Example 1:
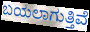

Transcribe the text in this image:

ಬಯಲಾಗುತ್ತಿವೆ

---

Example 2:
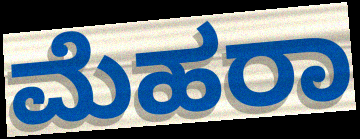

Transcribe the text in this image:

ಮೆಹರಾ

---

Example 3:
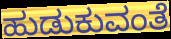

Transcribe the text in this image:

ಹುಡುಕುವಂತೆ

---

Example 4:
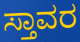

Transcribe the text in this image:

ಸ್ತಾವರ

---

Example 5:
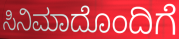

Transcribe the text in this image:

ಸಿನಿಮಾದೊಂದಿಗೆ